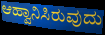
ಆಹ್ವಾನಿಸಿರುವುದು